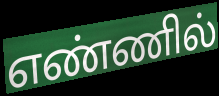
எண்ணில்